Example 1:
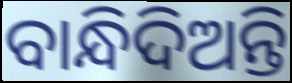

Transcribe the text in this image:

ବାନ୍ଧିଦିଅନ୍ତି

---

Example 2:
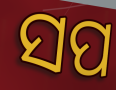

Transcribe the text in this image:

ସପ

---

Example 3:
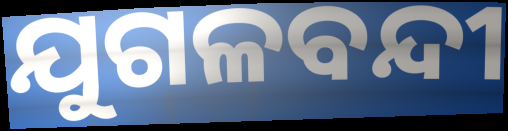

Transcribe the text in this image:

ଯୁଗଳବନ୍ଦୀ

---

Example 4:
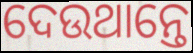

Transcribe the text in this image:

ଦେଉଥାନ୍ତେ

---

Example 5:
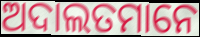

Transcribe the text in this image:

ଅଦାଲତମାନେ